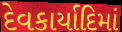
દેવકાર્યાદિમાં